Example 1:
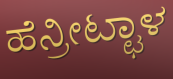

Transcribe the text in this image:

ಹೆನ್ರೀಟ್ಟಾಳ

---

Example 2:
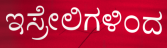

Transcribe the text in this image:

ಇಸ್ರೇಲಿಗಳಿಂದ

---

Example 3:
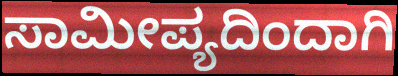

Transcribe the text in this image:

ಸಾಮೀಪ್ಯದಿಂದಾಗಿ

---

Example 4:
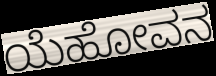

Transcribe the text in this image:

ಯೆಹೋವನ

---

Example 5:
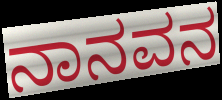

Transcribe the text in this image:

ನಾನವನ